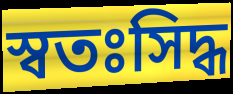
স্বতঃসিদ্ধ